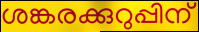
ശങ്കരക്കുറുപ്പിന്